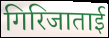
गिरिजाताई